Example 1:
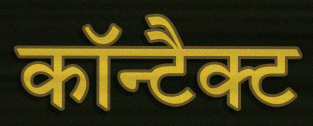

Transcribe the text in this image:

कॉन्टैक्ट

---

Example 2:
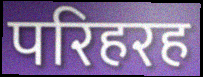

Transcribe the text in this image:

परिहरह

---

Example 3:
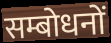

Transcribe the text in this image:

सम्बोधनों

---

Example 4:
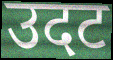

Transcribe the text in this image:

उदट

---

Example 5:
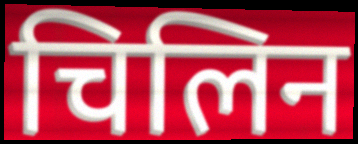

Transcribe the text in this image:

चिलिन